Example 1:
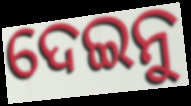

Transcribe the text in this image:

ଦେଇନୁ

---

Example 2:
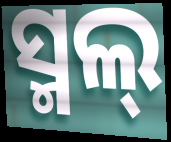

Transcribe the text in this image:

ସ୍ମଲ୍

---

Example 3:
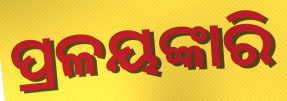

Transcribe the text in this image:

ପ୍ରଳୟଙ୍କାରି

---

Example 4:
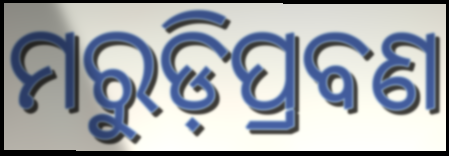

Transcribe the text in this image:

ମରୁଡ଼ିପ୍ରବଣ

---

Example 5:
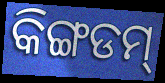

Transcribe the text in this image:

କିଙ୍ଗଡମ୍